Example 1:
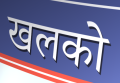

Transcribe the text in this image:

खलको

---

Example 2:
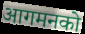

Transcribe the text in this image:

आगमनको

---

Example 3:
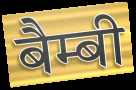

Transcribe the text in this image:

बैम्बी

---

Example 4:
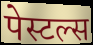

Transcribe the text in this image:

पेस्टल्स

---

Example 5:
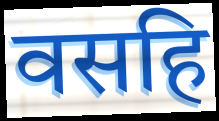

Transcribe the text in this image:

वसहि